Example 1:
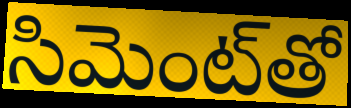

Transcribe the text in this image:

సిమెంట్‌తో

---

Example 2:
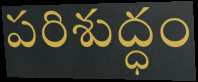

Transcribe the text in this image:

పరిశుద్ధం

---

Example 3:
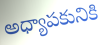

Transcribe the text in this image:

అధ్యాపకునికి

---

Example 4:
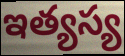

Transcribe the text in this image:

ఇత్యస్య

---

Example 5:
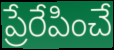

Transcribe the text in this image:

ప్రేరేపించే